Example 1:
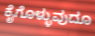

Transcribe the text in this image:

ಕೈಗೊಳ್ಳುವುದೂ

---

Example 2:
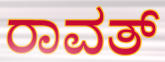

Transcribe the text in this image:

ರಾವತ್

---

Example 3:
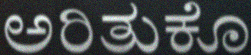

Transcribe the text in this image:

ಅರಿತುಕೊ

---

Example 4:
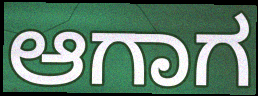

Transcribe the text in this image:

ಆಗಾಗ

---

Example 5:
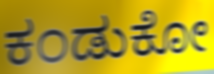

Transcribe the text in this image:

ಕಂಡುಕೋ